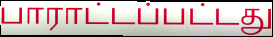
பாராட்டப்பட்டது